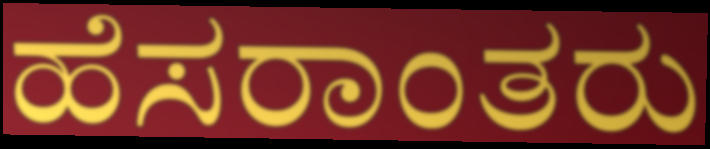
ಹೆಸರಾಂತರು